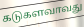
கடுகளவாவது